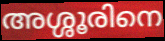
അശ്ശൂരിനെ